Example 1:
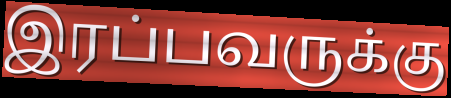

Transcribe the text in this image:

இரப்பவருக்கு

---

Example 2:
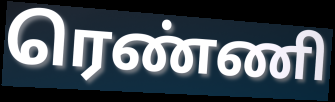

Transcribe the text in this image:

ரெண்ணி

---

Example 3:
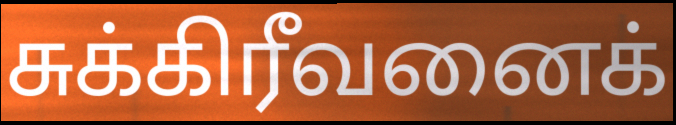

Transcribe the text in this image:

சுக்கிரீவனைக்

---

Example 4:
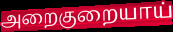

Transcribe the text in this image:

அறைகுறையாய்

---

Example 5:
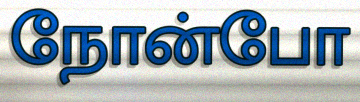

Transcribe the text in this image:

நோன்போ